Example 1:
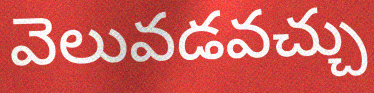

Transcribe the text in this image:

వెలువడవచ్చు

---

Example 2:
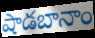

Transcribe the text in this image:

షాడబానాం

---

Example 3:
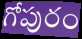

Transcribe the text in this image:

గోపురం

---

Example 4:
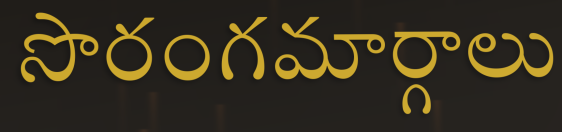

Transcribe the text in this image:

సొరంగమార్గాలు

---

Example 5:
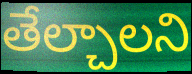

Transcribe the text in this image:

తేల్చాలని